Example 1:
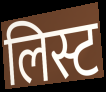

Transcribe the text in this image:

लिस्ट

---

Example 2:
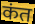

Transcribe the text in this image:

कंत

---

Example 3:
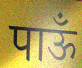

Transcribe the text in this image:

पाऊँ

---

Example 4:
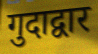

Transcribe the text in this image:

गुदाद्वार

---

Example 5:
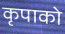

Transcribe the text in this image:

कृपाको